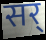
सर्